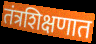
तंत्रशिक्षणात